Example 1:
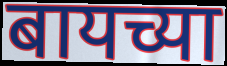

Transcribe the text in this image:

बायच्या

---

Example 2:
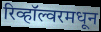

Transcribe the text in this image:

रिव्हॉल्वरमधून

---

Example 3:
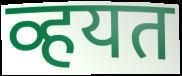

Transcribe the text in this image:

व्हयत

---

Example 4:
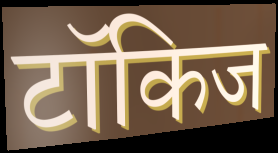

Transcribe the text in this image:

टॉकिज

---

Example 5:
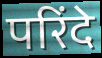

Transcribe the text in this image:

परिंदे